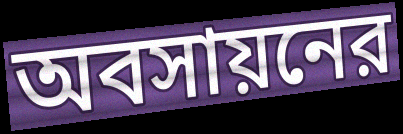
অবসায়নের